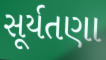
સૂર્યતણા